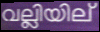
വല്ലിയില്